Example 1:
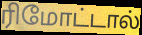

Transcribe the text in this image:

ரிமோட்டால்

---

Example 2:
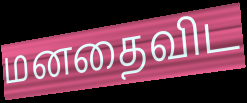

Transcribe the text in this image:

மனதைவிட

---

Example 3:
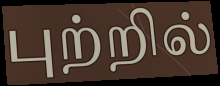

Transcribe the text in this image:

புற்றில்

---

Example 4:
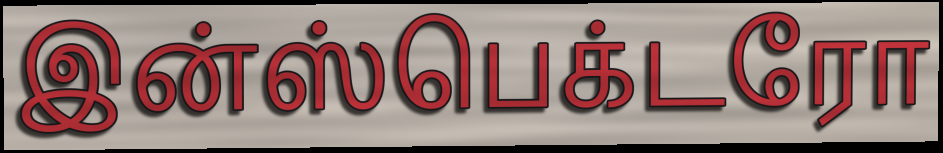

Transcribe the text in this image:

இன்ஸ்பெக்டரோ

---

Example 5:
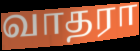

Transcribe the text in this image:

வாதரா